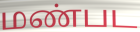
மண்பட